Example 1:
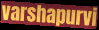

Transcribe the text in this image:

varshapurvi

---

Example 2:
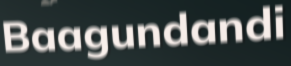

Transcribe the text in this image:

Baagundandi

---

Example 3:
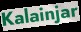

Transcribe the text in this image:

Kalainjar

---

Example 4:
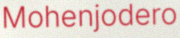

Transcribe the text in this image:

Mohenjodero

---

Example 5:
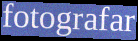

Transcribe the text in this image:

fotografar